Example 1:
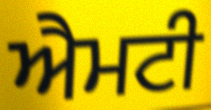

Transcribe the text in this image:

ਐਮਟੀ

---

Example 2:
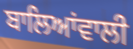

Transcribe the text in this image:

ਬਾਲਿਆਂਵਾਲੀ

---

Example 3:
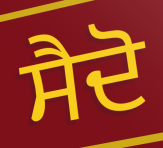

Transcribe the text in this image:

ਸੈਦੋ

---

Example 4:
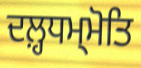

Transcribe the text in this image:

ਦਲ਼੍ਹਧਮ੍ਮੋਤਿ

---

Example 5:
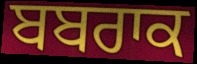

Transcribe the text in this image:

ਬਬਰਾਕ